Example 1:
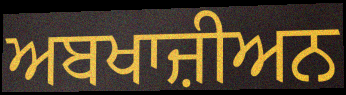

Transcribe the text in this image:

ਅਬਖਾਜ਼ੀਅਨ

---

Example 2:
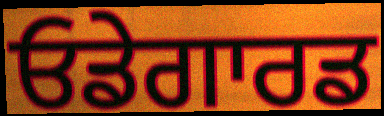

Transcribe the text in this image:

ਓਡੇਗਾਰਡ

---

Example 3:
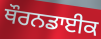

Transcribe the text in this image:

ਥੌਰਨਡਾਈਕ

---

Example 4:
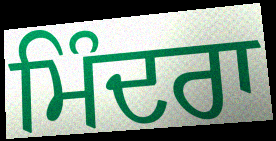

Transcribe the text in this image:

ਮਿੰਦਰਾ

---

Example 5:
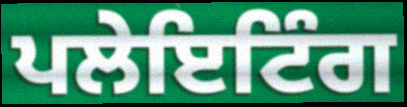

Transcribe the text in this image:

ਪਲੇਇਟਿੰਗ